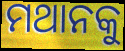
ମଥାନକୁ